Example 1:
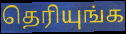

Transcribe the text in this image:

தெரியுங்க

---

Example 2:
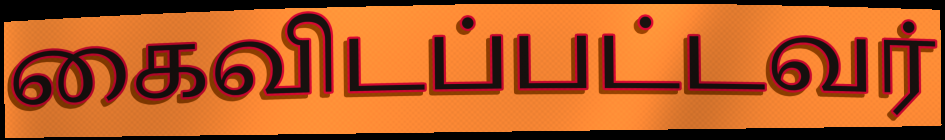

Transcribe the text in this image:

கைவிடப்பட்டவர்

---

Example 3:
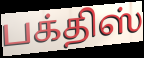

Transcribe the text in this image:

பக்திஸ்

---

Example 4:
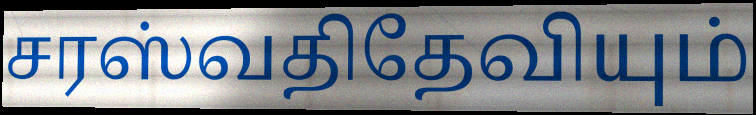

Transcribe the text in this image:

சரஸ்வதிதேவியும்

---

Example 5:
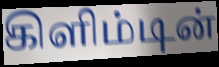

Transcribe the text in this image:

கிளிம்டின்